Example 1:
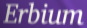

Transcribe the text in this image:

Erbium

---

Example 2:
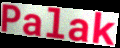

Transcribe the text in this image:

Palak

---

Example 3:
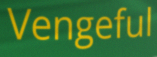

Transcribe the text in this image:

Vengeful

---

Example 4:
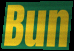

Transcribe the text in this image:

Bun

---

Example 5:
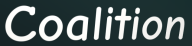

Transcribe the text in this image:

Coalition